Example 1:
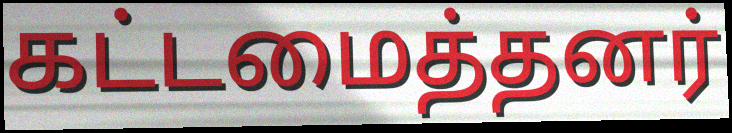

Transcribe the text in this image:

கட்டமைத்தனர்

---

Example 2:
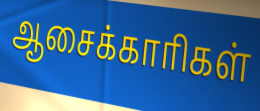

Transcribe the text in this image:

ஆசைக்காரிகள்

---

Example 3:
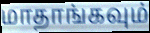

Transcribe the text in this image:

மாதாங்கவும்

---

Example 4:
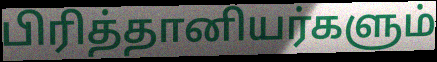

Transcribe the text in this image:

பிரித்தானியர்களும்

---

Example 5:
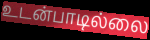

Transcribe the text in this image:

உடன்பாடில்லை